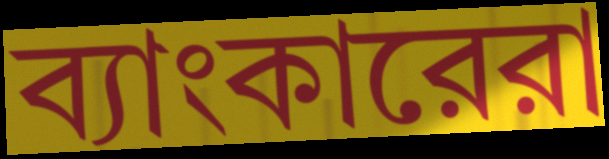
ব্যাংকারেরা